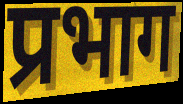
प्रभाग